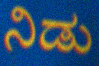
ನಿಡು